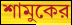
শামুকের